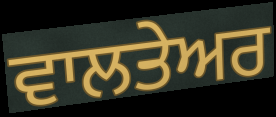
ਵਾਲਤੇਅਰ